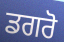
ਡਗਰੋ